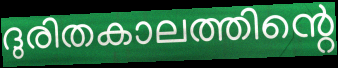
ദുരിതകാലത്തിന്റെ